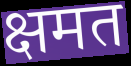
क्षमत